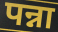
पन्ना